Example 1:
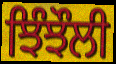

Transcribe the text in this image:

ਝਿੰਝੌਲੀ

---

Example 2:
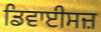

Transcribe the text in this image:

ਡਿਵਾਈਸਜ਼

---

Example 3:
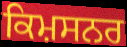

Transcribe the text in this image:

ਕਿਮ਼ਸਨਰ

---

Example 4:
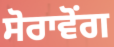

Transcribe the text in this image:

ਸੋਰਾਵੋਂਗ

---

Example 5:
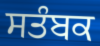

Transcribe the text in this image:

ਸਤੰਬਕ